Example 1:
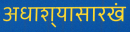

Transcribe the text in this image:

अधाश्यासारखं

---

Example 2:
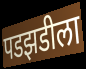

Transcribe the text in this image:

पडझडीला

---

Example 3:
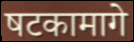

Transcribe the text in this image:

षटकामागे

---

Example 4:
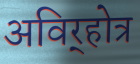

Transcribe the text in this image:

अविर्होत्र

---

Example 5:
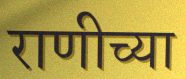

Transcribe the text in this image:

राणीच्या